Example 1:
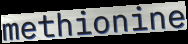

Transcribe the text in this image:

methionine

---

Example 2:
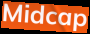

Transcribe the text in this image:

Midcap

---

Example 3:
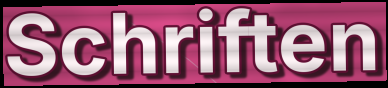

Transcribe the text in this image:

Schriften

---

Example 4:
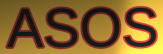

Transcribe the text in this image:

ASOS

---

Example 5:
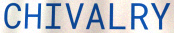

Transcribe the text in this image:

CHIVALRY